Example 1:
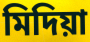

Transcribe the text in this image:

মিদিয়া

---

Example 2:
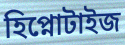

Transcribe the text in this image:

হিপ্নোটাইজ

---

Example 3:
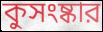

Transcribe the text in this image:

কুসংষ্কার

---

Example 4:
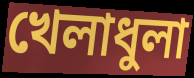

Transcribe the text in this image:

খেলাধুলা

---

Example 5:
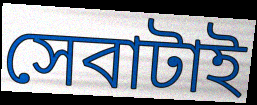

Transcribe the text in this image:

সেবাটাই